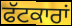
ਫੱਟਕਾਰਾਂ